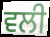
ਵਲੀ